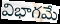
విభాగమే